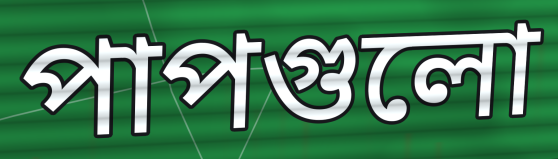
পাপগুলো